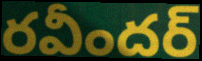
రవీందర్